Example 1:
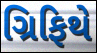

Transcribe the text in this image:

ગ્રિફિથે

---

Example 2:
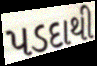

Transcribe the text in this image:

પડદાથી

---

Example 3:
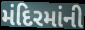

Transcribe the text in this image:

મંદિરમાંની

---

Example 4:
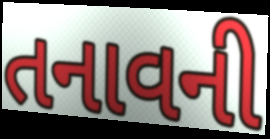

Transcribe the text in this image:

તનાવની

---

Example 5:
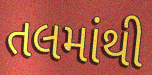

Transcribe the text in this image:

તલમાંથી